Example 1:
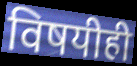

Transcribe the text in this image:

विषयीही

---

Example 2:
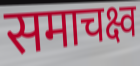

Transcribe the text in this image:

समाचक्ष्व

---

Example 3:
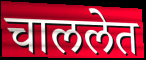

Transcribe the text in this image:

चाललेत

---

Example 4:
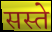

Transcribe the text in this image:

सस्ते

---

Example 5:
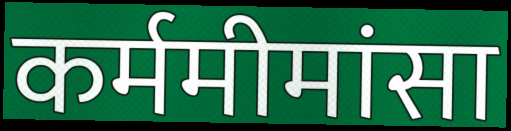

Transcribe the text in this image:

कर्ममीमांसा